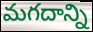
మగదాన్ని